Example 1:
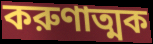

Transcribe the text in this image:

করুণাত্মক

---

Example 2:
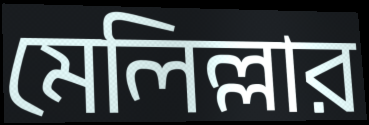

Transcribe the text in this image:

মেলিল্লার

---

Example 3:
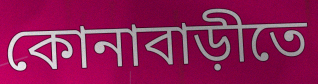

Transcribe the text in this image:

কোনাবাড়ীতে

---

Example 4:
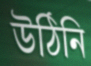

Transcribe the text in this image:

উঠিনি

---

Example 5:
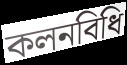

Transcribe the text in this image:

কলনবিধি